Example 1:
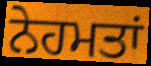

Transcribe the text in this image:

ਨੇਹਮਤਾਂ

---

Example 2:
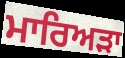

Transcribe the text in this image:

ਮਾਰਿਅੜਾ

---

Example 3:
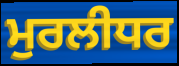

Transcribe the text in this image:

ਮੁਰਲੀਧਰ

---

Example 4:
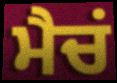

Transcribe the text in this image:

ਮੈਚਂ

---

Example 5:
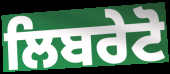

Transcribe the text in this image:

ਲਿਬਰੇਟੋ